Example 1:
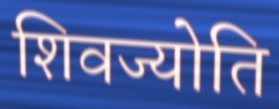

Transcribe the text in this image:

शिवज्योति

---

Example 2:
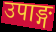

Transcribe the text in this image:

उपाङ्ग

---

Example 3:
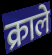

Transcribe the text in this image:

क्राले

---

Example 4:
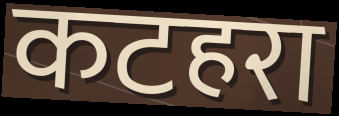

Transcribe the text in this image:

कटहरा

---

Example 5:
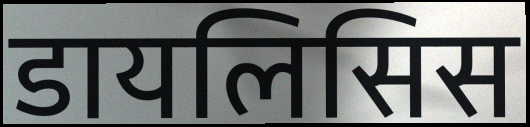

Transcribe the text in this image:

डायलिसिस